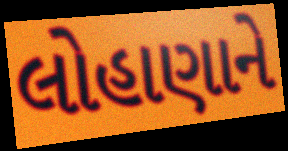
લોહાણાને